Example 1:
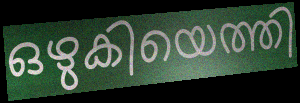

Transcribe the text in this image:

ഒഴുകിയെത്തി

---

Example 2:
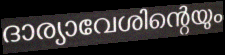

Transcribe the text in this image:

ദാര്യാവേശിന്റെയും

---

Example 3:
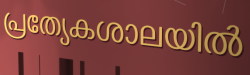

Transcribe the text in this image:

പ്രത്യേകശാലയിൽ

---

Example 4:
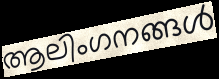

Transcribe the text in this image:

ആലിംഗനങ്ങൾ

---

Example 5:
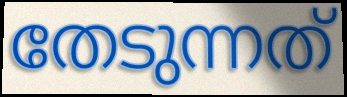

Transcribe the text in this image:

തേടുന്നത്